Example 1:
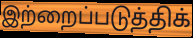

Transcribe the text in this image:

இற்றைப்படுத்திக்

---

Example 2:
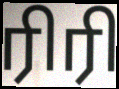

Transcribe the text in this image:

ரிரி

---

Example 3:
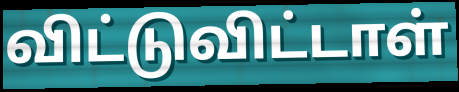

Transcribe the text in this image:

விட்டுவிட்டாள்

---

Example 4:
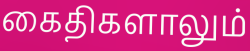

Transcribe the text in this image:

கைதிகளாலும்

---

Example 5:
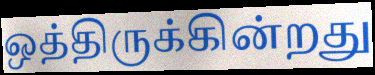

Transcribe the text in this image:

ஒத்திருக்கின்றது